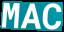
MAC